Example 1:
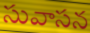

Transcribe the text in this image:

సువాసన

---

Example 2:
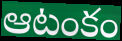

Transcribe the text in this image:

ఆటంకం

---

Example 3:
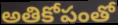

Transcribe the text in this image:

అతికోపంతో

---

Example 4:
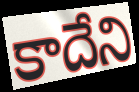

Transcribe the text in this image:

కాదేని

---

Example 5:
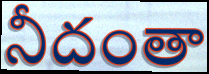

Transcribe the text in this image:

నీదంతా